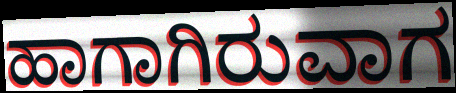
ಹಾಗಾಗಿರುವಾಗ